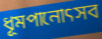
ধূমপানোৎসব